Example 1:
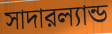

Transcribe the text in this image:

সাদারল্যান্ড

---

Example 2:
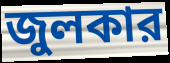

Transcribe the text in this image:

জুলকার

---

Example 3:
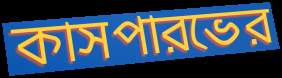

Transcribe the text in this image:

কাসপারভের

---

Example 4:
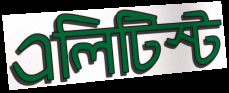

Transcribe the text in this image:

এলিটিস্ট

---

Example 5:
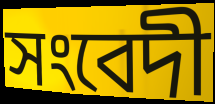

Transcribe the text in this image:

সংবেদী